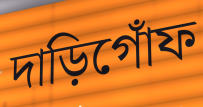
দাড়িগোঁফ